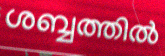
ശബ്ബത്തിൽ